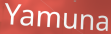
Yamuna